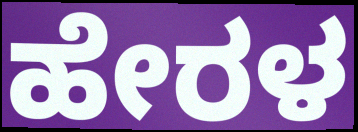
ಹೇರಳ